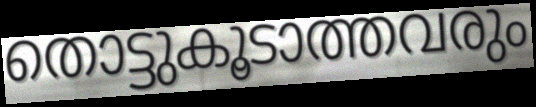
തൊട്ടുകൂടാത്തവരും